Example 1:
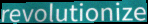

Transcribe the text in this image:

revolutionize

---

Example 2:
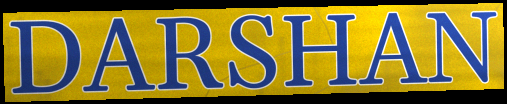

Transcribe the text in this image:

DARSHAN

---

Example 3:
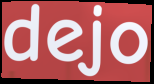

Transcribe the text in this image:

dejo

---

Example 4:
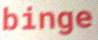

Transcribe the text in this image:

binge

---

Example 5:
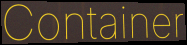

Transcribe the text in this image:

Container